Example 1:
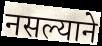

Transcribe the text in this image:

नसल्याने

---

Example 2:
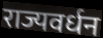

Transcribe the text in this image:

राज्‍यवर्धन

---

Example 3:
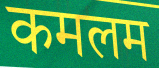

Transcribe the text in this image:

कमलम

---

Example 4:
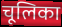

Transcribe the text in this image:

चूलिका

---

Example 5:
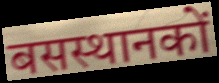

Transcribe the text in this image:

बसस्थानकों